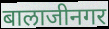
बालाजीनगर